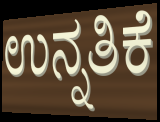
ಉನ್ನತಿಕೆ